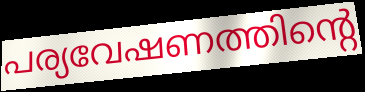
പര്യവേഷണത്തിന്റെ